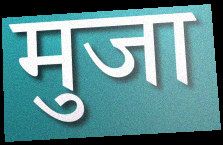
मुजा